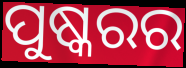
ପୁଷ୍କରର